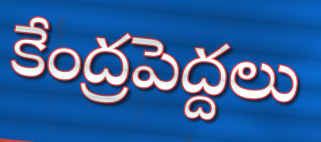
కేంద్రపెద్దలు